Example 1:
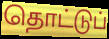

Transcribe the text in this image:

தொட்டுப்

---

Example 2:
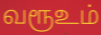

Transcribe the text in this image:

வரூஉம்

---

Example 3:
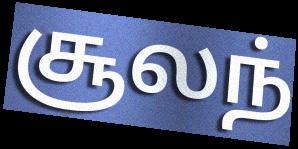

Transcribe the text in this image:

சூலந்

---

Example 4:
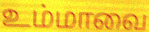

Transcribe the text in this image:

உம்மாவை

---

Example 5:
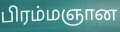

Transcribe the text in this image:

பிரம்மஞான